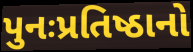
પુનઃપ્રતિષ્ઠાનો